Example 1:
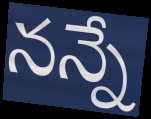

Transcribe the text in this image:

నన్నే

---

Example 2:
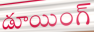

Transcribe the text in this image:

డూయింగ్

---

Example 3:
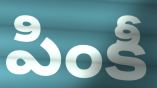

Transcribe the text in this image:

పింకీ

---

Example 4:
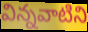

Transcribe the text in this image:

విన్నవాటిని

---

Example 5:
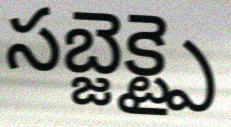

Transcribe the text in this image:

సబ్జెక్ట్పై